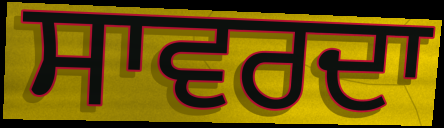
ਸਾਵਰਦਾ